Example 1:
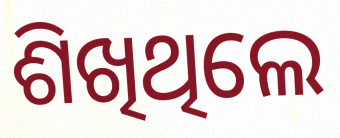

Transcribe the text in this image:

ଶିଖିଥିଲେ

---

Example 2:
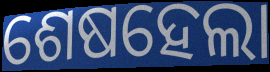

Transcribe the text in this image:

ଶେଷହେଲା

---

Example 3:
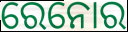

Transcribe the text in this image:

ରେନୋର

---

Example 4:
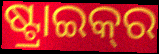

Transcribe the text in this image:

ଷ୍ଟ୍ରାଇକ୍‍ର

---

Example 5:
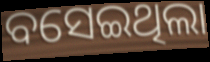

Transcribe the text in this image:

ବସେଇଥିଲା